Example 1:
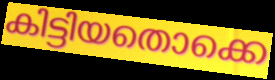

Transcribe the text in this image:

കിട്ടിയതൊക്കെ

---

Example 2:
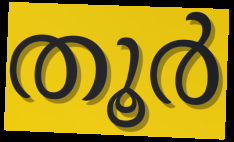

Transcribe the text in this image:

തൂർ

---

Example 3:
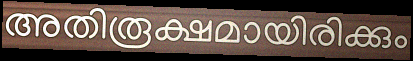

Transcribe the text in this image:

അതിരൂക്ഷമായിരിക്കും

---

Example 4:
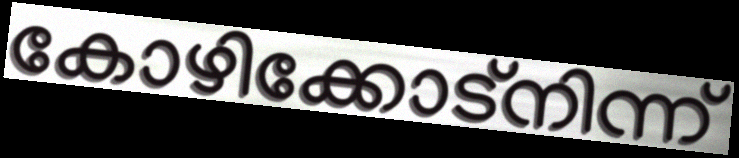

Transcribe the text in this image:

കോഴിക്കോട്നിന്ന്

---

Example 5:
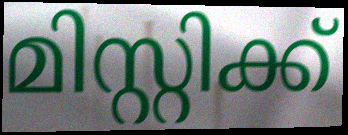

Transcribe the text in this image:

മിസ്റ്റിക്ക്